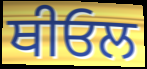
ਥੀਓਲ